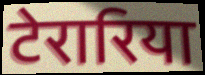
टेरारिया